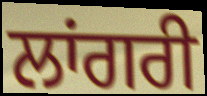
ਲਾਂਗਰੀ